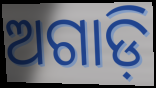
ଅଗାଡ଼ି